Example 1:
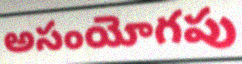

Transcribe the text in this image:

అసంయోగపు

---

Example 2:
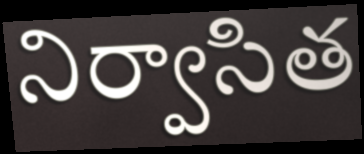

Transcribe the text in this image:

నిర్వాసిత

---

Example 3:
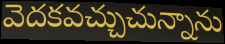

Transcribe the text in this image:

వెదకవచ్చుచున్నాను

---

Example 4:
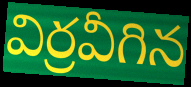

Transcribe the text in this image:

విర్రవీగిన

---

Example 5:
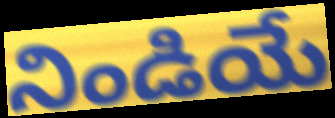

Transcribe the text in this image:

నిండియే